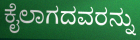
ಕೈಲಾಗದವರನ್ನು